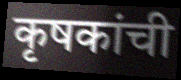
कृषकांची